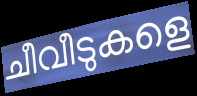
ചീവീടുകളെ